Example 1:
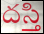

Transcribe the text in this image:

దస్తి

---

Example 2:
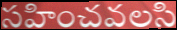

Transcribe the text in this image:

సహించవలసి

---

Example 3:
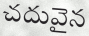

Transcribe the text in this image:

చదువైన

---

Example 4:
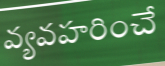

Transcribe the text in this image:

వ్యవహరించే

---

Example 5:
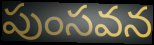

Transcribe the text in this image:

పుంసవన